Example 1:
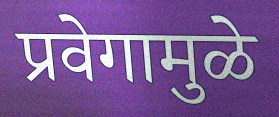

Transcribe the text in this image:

प्रवेगामुळे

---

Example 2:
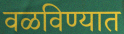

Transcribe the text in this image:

वळविण्यात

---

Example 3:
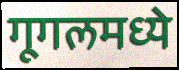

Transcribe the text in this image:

गूगलमध्ये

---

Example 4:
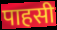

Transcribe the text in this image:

पाहसी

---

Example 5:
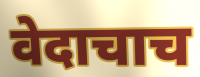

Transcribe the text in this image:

वेदाचाच